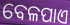
ବେଳପାଏ